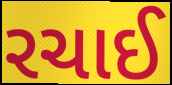
રચાઈ